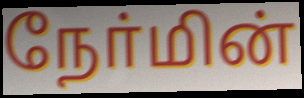
நேர்மின்